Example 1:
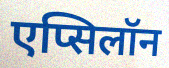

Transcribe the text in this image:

एप्सिलॉन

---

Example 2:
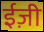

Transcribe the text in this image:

ईज़ी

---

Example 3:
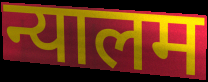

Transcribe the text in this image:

न्यालम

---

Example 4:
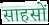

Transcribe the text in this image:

साहसों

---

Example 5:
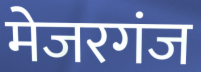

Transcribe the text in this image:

मेजरगंज